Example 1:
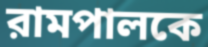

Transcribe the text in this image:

রামপালকে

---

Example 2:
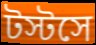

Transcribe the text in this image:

টস্টসে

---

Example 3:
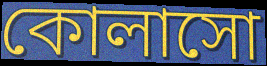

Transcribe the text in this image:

কোলাসো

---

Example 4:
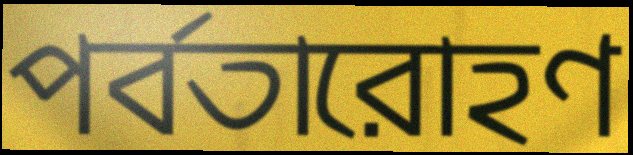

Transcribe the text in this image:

পর্বতারোহণ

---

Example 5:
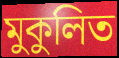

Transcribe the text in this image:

মুকুলিত